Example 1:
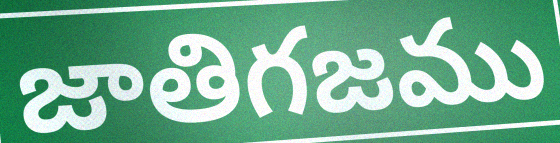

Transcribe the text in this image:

జాతిగజము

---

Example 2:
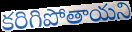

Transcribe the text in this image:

కరిగిపోతాయని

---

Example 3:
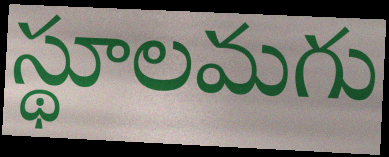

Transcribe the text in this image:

స్థూలమగు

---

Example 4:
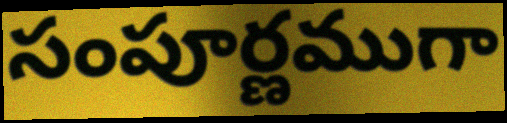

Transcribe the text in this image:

సంపూర్ణముగా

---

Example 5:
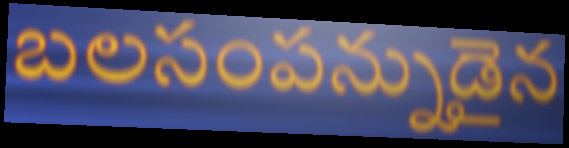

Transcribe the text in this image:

బలసంపన్నుడైన